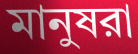
মানুষরা